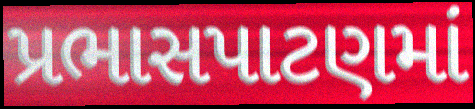
પ્રભાસપાટણમાં